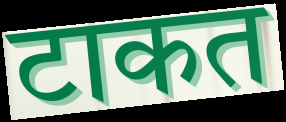
टाकत